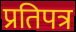
प्रतिपत्र